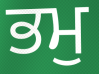
ਭਮੁ